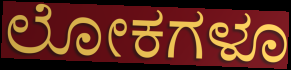
ಲೋಕಗಳೂ